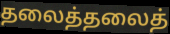
தலைத்தலைத்